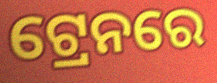
ଟ୍ରେନରେ